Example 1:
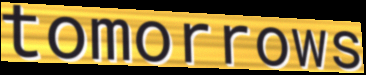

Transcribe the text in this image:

tomorrows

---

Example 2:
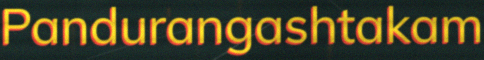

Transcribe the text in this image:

Pandurangashtakam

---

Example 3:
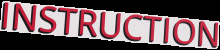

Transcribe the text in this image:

INSTRUCTION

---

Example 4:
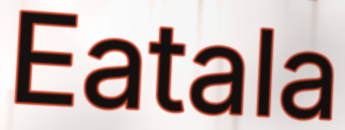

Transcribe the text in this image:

Eatala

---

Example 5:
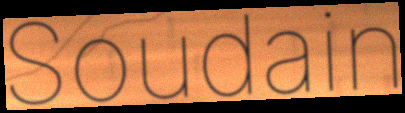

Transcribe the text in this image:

Soudain